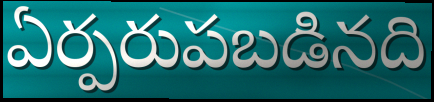
ఏర్పరుపబడినది